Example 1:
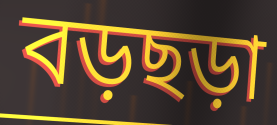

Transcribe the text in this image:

বড়ছড়া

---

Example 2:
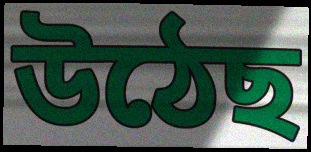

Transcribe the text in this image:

উঠেছ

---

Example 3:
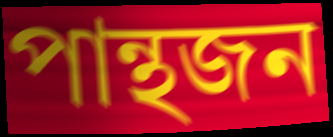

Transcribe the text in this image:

পান্থজন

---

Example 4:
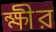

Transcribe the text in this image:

ক্ষীর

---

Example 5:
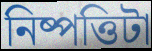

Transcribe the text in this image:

নিষ্পত্তিটা